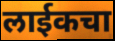
लाईकचा